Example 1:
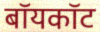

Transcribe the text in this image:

बॉयकॉट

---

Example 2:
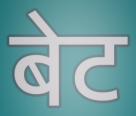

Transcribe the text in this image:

बेट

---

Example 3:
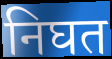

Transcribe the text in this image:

निघत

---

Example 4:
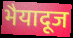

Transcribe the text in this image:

भैयादूज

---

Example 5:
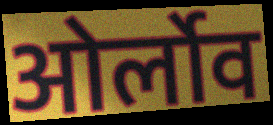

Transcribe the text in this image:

ओर्लोव